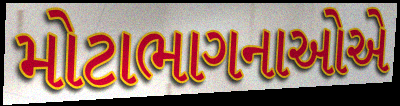
મોટાભાગનાઓએ